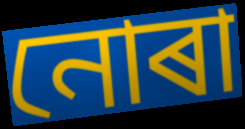
নোৰা